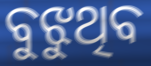
ବୁଝୁଥିବ